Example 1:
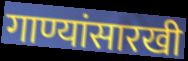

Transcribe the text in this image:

गाण्यांसारखी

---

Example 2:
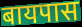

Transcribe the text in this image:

बायपास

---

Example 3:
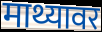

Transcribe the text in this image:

माथ्यावर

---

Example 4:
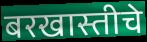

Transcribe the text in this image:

बरखास्तीचे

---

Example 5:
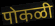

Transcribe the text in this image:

पोकळी